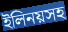
ইলিনয়সহ